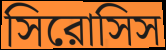
সিরোসিস